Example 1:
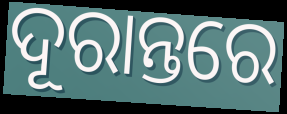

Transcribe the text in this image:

ଦୂରାନ୍ତରେ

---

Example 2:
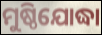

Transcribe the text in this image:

ମୁଷ୍ଠିଯୋଦ୍ଧା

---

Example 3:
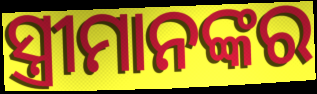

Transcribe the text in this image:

ସ୍ତ୍ରୀମାନଙ୍କର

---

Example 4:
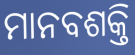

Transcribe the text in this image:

ମାନବଶକ୍ତି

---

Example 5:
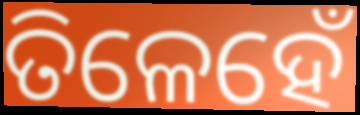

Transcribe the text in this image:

ତିଳେହେଁ